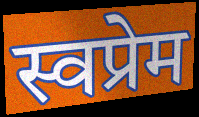
स्वप्रेम